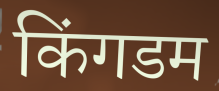
किंगडम